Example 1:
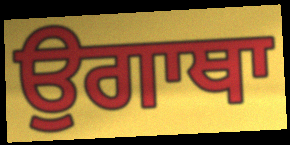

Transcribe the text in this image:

ਉਗਾਥਾ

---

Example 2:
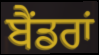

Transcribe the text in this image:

ਬੈਂਡਰਾਂ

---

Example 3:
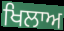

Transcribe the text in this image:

ਖਿਲਾਅ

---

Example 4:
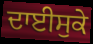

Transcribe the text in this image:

ਦਾਈਸੁਕੇ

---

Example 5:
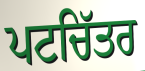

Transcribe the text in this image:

ਪਟਚਿੱਤਰ